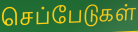
செப்பேடுகள்